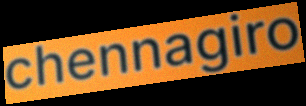
chennagiro